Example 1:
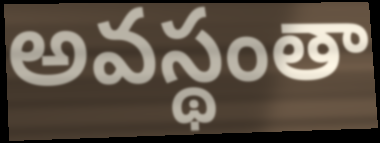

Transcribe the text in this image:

అవస్థంతా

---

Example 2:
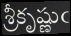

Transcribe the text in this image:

శ్రీకృష్ణుఁ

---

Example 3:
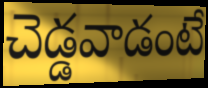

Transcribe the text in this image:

చెడ్డవాడంటే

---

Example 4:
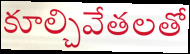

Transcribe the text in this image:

కూల్చివేతలతో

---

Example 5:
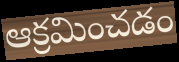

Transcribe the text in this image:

ఆక్రమించడం